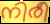
നിരീ